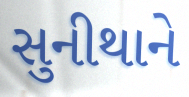
સુનીથાને